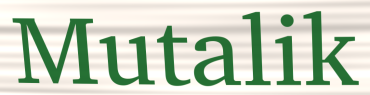
Mutalik